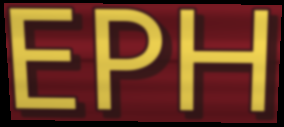
EPH